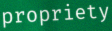
propriety